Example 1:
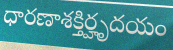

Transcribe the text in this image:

ధారణాశక్తిర్హృదయం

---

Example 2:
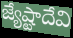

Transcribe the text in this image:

జ్యేష్టాదేవి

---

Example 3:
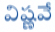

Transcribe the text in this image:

విష్ణవే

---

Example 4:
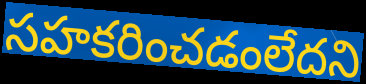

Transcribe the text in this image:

సహకరించడంలేదని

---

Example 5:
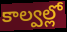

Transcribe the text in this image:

కాల్వల్లో